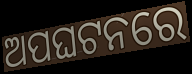
ଅପଘଟନରେ